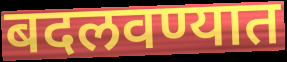
बदलवण्यात